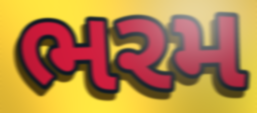
ભરમ